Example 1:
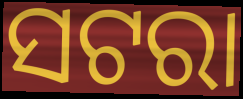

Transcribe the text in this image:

ସଟରା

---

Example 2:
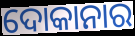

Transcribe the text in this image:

ଦୋକାନାର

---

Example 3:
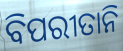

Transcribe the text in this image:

ବିପରୀତାନି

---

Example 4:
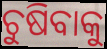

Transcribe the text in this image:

ଚୁଷିବାକୁ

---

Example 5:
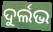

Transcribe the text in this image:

ଦୁର୍ଲଭ